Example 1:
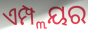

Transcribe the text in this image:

ଏମ୍ପ୍ଲୟର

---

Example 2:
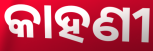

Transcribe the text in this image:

କାହଣୀ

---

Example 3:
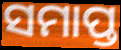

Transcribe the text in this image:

ସମାପ୍ତ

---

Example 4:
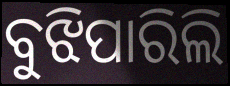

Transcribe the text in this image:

ବୁଝିପାରିଲି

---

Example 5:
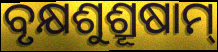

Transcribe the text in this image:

ବୃକ୍ଷଶୁଶ୍ରୂଷାମ୍